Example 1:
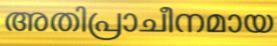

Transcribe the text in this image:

അതിപ്രാചീനമായ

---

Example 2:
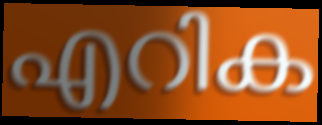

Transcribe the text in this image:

എറിക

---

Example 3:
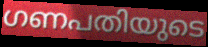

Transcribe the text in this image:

ഗണപതിയുടെ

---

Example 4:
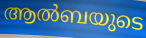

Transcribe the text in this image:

ആൽബയുടെ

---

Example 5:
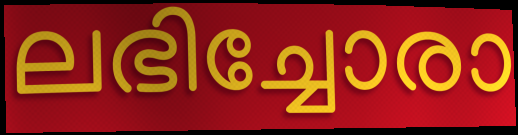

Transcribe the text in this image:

ലഭിച്ചോരാ